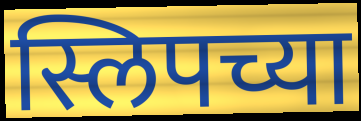
स्लिपच्या